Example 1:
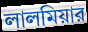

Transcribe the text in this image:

লালমিয়ার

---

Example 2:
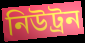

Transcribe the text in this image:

নিউট্রন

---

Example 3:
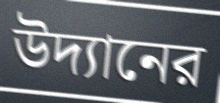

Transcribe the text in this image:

উদ্যানের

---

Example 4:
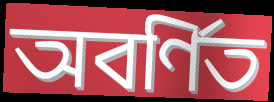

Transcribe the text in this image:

অবর্ণিত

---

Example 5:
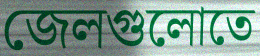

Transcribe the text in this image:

জেলগুলোতে